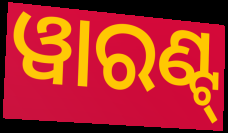
ୱାରଣ୍ଟ୍